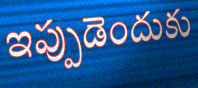
ఇప్పుడెందుకు